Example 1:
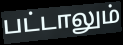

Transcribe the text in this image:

பட்டாலும்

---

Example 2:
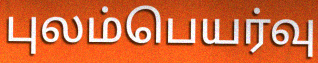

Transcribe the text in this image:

புலம்பெயர்வு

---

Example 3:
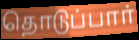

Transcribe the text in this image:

தொடுப்பார்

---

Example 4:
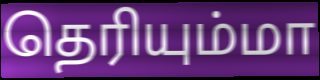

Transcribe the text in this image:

தெரியும்மா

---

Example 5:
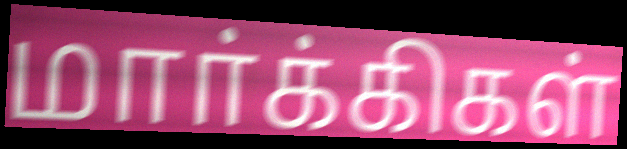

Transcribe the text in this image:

மார்க்கிகள்